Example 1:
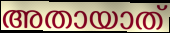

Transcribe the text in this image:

അതായാത്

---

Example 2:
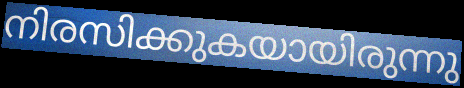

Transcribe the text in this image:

നിരസിക്കുകയായിരുന്നു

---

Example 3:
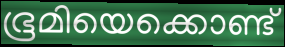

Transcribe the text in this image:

ഭൂമിയെക്കൊണ്ട്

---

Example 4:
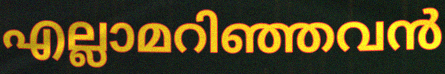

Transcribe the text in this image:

എല്ലാമറിഞ്ഞവൻ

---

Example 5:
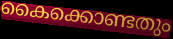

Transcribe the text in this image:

കൈക്കൊണ്ടതും